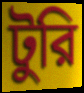
টুরি